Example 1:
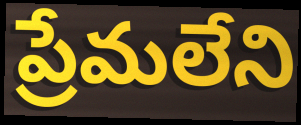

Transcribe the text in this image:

ప్రేమలేని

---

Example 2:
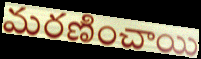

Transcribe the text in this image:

మరణించాయి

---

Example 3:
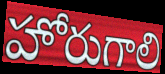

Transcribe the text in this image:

హోరుగాలి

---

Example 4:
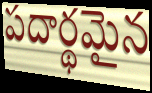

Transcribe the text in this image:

పదార్థమైన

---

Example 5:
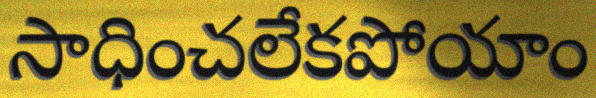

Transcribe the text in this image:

సాధించలేకపోయాం